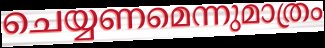
ചെയ്യണമെന്നുമാത്രം